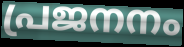
പ്രജനനം